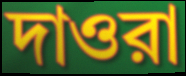
দাওরা